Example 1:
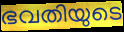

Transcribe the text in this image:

ഭവതിയുടെ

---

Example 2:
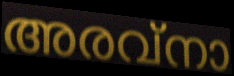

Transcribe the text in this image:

അരവ്നാ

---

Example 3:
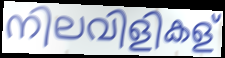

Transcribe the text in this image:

നിലവിളികള്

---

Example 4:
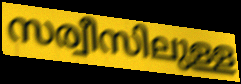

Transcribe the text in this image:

സര്വീസിലുള്ള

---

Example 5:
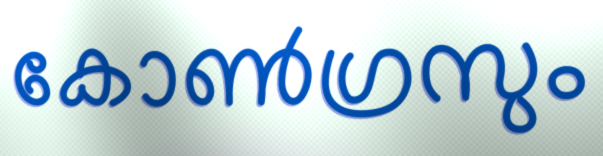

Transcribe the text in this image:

കോൺഗ്രസും